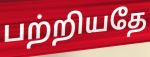
பற்றியதே